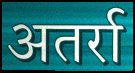
अतर्रा